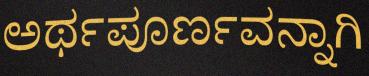
ಅರ್ಥಪೂರ್ಣವನ್ನಾಗಿ